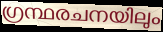
ഗ്രന്ഥരചനയിലും